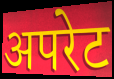
अपरेट